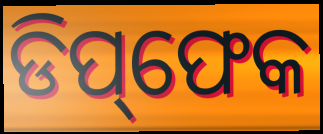
ଡିପ୍‌ଫେକ